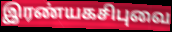
இரண்யகசிபுவை